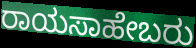
ರಾಯಸಾಹೇಬರು